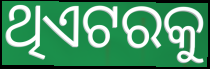
ଥିଏଟରକୁ